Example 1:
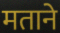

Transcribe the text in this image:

मताने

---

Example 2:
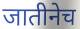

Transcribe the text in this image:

जातीनेच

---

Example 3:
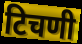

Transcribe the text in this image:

टिचणी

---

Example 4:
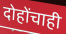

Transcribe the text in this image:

दोहोंचाही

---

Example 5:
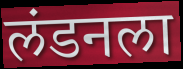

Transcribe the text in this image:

लंडनला